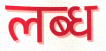
लब्ध